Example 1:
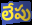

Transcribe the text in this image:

లేపు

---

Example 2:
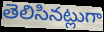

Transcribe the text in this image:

తెలిసినట్లుగా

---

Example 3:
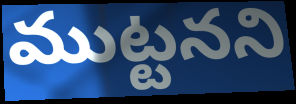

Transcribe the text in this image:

ముట్టనని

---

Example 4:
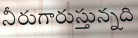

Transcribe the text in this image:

నీరుగారుస్తున్నది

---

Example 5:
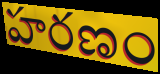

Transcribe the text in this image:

హరణం